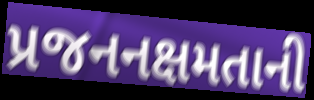
પ્રજનનક્ષમતાની